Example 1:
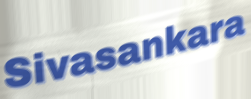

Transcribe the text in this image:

Sivasankara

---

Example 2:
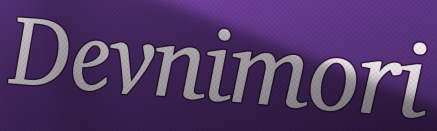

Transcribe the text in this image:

Devnimori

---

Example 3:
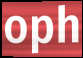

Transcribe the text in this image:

oph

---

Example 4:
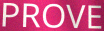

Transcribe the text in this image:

PROVE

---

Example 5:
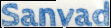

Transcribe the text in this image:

Sanvad